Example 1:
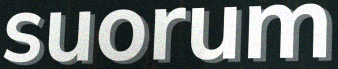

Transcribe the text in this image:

suorum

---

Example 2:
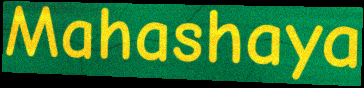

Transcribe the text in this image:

Mahashaya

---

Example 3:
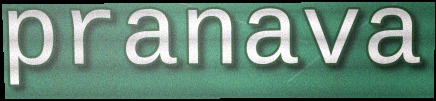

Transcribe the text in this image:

pranava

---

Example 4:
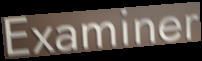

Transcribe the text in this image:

Examiner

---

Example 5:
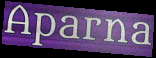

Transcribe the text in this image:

Aparna